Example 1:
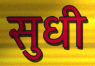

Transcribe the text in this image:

सुधी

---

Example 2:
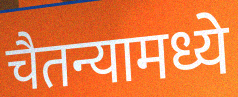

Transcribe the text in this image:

चैतन्यामध्ये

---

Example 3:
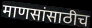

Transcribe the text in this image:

माणसांसाठीच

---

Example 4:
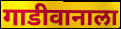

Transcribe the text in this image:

गाडीवानाला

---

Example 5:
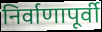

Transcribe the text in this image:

निर्वाणापूर्वी